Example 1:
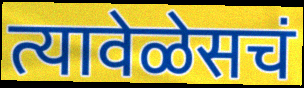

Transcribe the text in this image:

त्यावेळेसचं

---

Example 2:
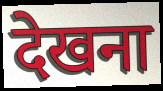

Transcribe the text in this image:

देखना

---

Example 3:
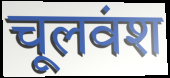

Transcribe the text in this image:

चूलवंश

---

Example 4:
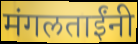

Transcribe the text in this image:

मंगलताईंनी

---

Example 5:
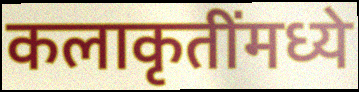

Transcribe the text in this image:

कलाकृतींमध्ये